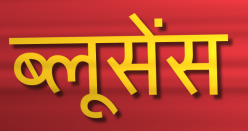
ब्लूसेंस